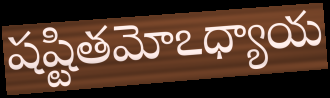
షష్టితమోఽధ్యాయ